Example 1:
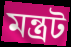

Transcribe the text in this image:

মন্ত্রট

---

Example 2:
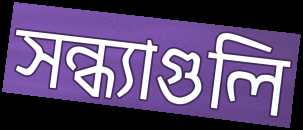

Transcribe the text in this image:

সন্ধ্যাগুলি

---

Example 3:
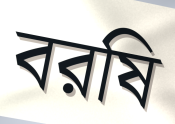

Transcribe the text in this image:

বরষি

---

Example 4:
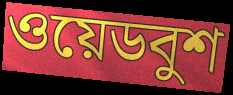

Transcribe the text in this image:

ওয়েডবুশ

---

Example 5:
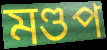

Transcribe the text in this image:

মণ্ডপ